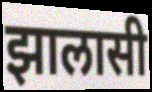
झालासी